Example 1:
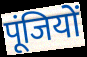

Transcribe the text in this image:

पूंजियों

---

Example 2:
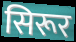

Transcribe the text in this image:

सिरूर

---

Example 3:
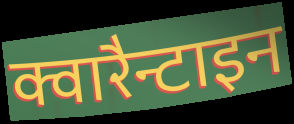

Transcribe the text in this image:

क्वारैन्टाइन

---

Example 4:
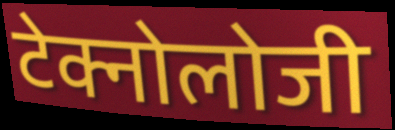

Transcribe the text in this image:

टेक्नोलोजी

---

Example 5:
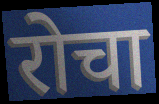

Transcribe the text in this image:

रोचा